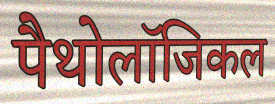
पैथोलॉजिकल